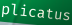
plicatus